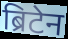
ब्रिटेन